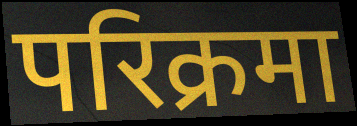
परिक्रमा